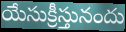
యేసుక్రీస్తునందు